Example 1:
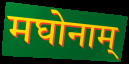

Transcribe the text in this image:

मघोनाम्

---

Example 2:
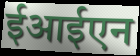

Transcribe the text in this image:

ईआईएन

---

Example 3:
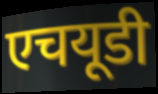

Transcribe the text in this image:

एचयूडी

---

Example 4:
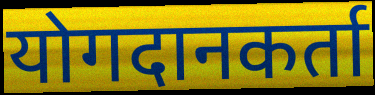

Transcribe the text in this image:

योगदानकर्ता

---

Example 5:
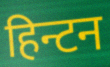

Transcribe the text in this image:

हिन्टन